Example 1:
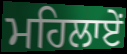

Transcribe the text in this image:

ਮਹਿਲਾਏਂ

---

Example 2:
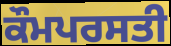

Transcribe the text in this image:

ਕੌਮਪਰਸਤੀ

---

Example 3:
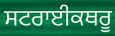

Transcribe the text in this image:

ਸਟਰਾਈਕਥਰੂ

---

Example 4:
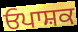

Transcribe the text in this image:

ਓਪਾਸ਼ਕ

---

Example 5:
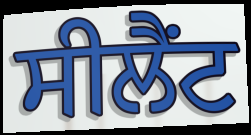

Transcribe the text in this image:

ਸੀਲੈਂਟ